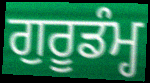
ਗੁਰੂਡੰਮ੍ਹ